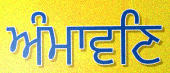
ਅੰਮਾਵਣਿ